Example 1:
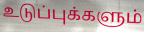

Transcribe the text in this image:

உடுப்புக்களும்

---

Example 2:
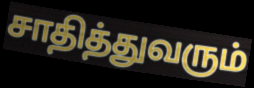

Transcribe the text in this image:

சாதித்துவரும்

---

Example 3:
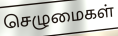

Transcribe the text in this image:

செழுமைகள்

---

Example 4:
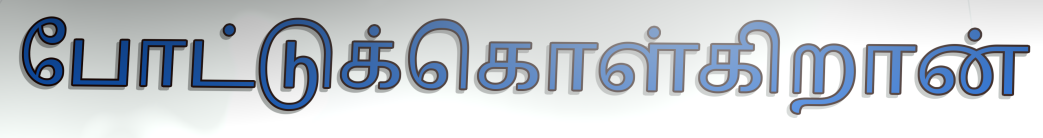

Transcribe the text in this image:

போட்டுக்கொள்கிறான்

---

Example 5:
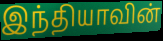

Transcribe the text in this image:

இந்தியாவின்